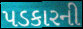
પડકારની